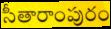
సీతారాంపురం